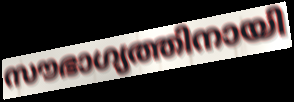
സൗഭാഗ്യത്തിനായി